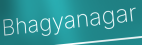
Bhagyanagar